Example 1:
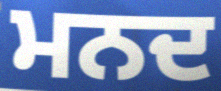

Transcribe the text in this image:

ਮਨਦ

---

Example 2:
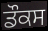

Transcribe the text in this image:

ਡੌਕਸ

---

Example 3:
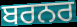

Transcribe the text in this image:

ਬਰਨਰ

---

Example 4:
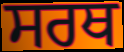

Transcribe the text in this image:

ਸਰਥ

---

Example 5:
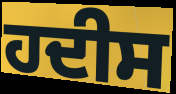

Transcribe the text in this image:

ਹਦੀਸ